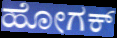
ಹೋಗಕ್